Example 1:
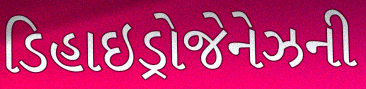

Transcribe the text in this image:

ડિહાઇડ્રોજેનેઝની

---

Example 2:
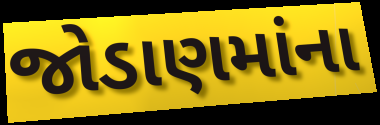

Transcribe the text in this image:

જોડાણમાંના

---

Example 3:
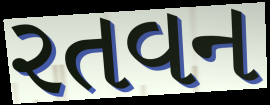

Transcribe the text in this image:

રતવન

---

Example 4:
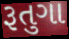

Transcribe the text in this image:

રૂતુગા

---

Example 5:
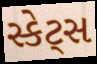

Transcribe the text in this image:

સ્કેટ્સ